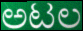
ಅಟಲ